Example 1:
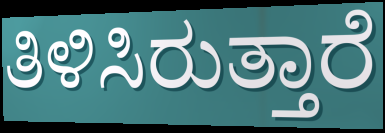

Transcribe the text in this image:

ತಿಳಿಸಿರುತ್ತಾರೆ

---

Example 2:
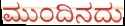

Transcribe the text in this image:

ಮುಂದಿನದು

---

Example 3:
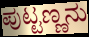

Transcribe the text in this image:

ಪುಟ್ಟಣ್ಣನು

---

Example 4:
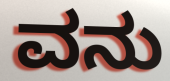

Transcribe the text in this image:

ವನು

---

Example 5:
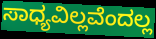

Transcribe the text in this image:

ಸಾಧ್ಯವಿಲ್ಲವೆಂದಲ್ಲ